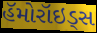
હૅમોરૉઇડ્સ